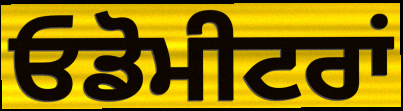
ਓਡੋਮੀਟਰਾਂ